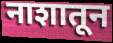
नाशातून